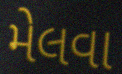
મેલવા